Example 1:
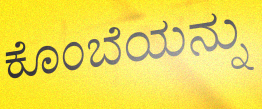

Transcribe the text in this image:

ಕೊಂಬೆಯನ್ನು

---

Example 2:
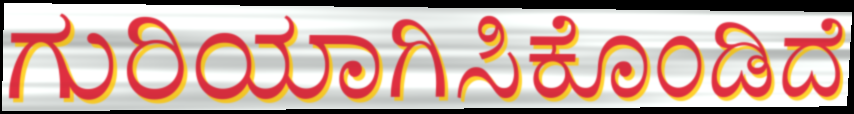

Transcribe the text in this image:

ಗುರಿಯಾಗಿಸಿಕೊಂಡಿದೆ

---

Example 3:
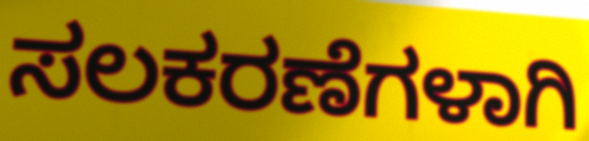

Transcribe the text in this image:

ಸಲಕರಣೆಗಳಾಗಿ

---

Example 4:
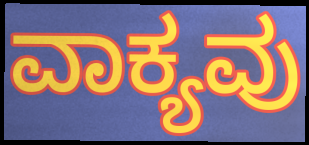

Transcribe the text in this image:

ವಾಕ್ಯವು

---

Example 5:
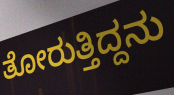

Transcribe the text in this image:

ತೋರುತ್ತಿದ್ದನು